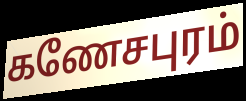
கணேசபுரம்